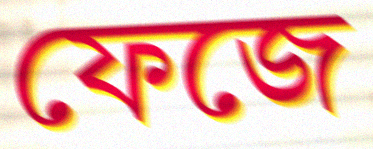
ফেজে